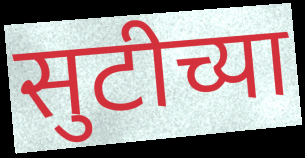
सुटीच्या